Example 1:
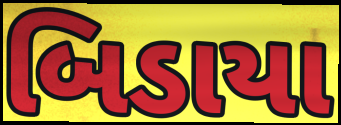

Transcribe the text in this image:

બિડાયા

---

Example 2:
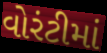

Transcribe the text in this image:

વોરંટીમાં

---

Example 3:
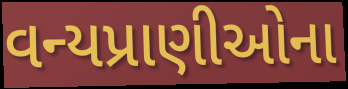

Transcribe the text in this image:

વન્યપ્રાણીઓના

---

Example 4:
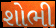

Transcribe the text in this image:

શોભી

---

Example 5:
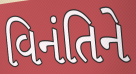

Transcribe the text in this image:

વિનંતિને